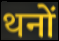
थनों